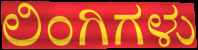
ಲಿಂಗಿಗಳು